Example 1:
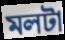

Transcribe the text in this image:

মলটা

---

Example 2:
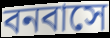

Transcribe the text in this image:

বনবাসে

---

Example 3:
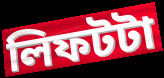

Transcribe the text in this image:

লিফটটা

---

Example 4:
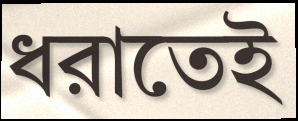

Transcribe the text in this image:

ধরাতেই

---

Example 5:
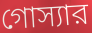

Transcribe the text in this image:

গোস্যার